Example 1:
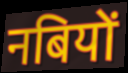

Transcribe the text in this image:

नबियों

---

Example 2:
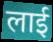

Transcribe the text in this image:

लाई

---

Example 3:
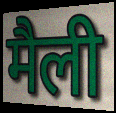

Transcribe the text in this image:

मैली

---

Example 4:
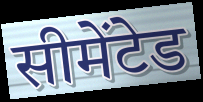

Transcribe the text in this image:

सीमेंटेड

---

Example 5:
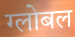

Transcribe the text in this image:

ग्लोबल